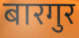
बारगुर